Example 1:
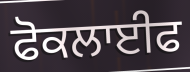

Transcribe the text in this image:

ਫੋਕਲਾਈਫ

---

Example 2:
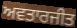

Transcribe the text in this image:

ਅਵਤਾਰਜੀਤ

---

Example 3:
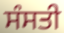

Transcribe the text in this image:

ਸੰਸਤੀ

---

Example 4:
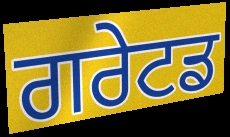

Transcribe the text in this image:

ਗਰੇਟਡ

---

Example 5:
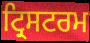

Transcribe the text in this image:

ਟ੍ਰਿਸਟਰਮ